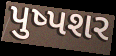
પુષ્પશર